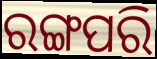
ରଙ୍ଗପରି